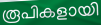
രൂപികളായി